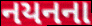
નયનના